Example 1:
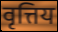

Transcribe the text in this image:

वृत्तिय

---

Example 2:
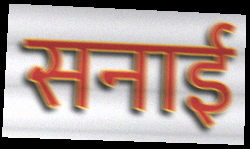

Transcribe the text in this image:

सनाई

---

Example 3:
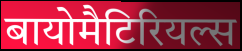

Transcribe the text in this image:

बायोमैटिरियल्स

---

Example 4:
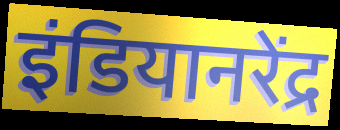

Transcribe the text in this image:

इंडियानरेंद्र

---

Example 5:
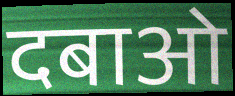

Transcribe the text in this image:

दबाओ